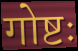
गोष्टः